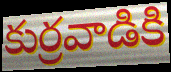
కుర్రవాడికి